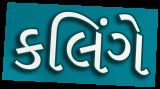
કલિંગે